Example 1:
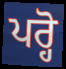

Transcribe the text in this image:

ਪਰ੍ਹੋ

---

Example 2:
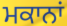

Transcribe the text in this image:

ਮਕਾਨਾਂ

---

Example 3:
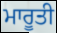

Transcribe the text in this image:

ਮਾਰੂਤੀ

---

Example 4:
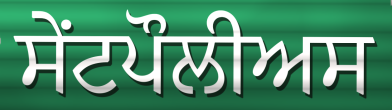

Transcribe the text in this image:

ਸੇਂਟਪੌਲੀਅਸ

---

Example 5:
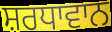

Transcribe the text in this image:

ਸ਼ਰਧਾਵਾਨ